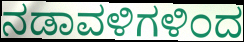
ನಡಾವಳಿಗಳಿಂದ